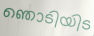
ഞൊടിയിട